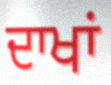
ਦਾਖਾਂ